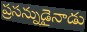
ప్రసన్నుడైనాడు